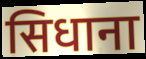
सिधाना